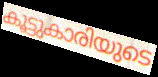
കൂട്ടുകാരിയുടെ